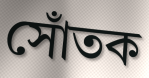
সোঁতক